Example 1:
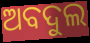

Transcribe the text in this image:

ଅବଦୁଲ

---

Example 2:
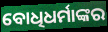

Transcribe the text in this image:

ବୋଧିଧର୍ମାଙ୍କର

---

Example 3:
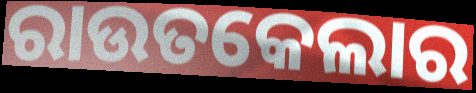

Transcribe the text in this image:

ରାଉତକେଲାର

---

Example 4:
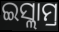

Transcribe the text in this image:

ଇସ୍ଲାମ୍ର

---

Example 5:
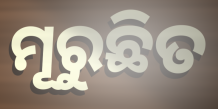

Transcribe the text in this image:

ମୂରୁଛିତ